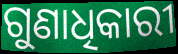
ଗୁଣାଧିକାରୀ